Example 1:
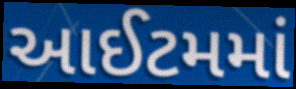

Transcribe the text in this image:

આઈટમમાં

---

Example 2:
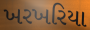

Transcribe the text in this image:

ખરખરિયા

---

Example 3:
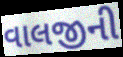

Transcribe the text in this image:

વાલજીની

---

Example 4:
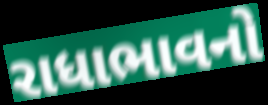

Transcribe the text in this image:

રાધાભાવનો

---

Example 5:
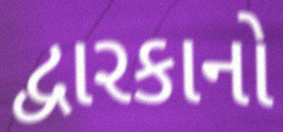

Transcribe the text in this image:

દ્વારકાનો